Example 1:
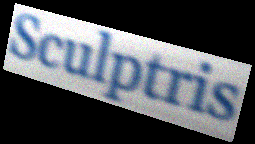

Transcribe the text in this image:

Sculptris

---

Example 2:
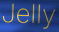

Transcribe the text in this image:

Jelly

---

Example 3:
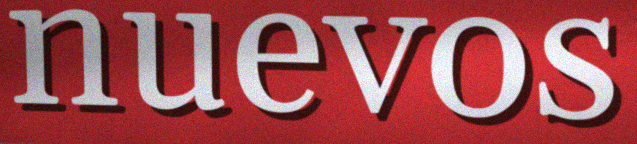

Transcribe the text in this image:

nuevos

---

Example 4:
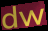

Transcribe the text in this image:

dw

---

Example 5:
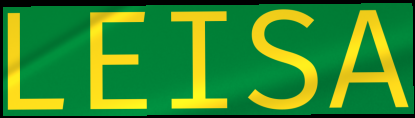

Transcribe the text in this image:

LEISA